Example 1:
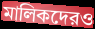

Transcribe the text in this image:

মালিকদেরও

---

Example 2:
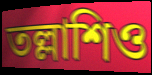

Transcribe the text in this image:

তল্লাশিও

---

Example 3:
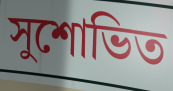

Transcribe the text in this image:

সুশোভিত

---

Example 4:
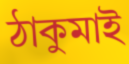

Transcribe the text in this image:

ঠাকুমাই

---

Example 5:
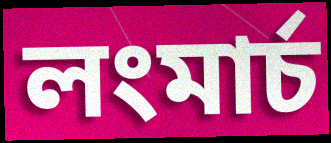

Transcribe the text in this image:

লংমার্চ